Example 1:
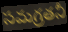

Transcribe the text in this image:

సమగ్రతనీ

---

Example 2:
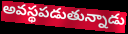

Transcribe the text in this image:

అవస్థపడుతున్నాడు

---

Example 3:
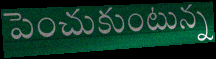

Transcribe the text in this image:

పెంచుకుంటున్న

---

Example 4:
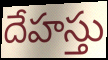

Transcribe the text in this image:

దేహస్తు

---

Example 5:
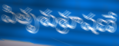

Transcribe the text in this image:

పితృశుశ్రూషణే